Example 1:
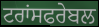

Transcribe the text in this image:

ਟਰਾਂਸਫਰੇਬਲ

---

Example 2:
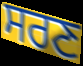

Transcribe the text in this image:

ਸਰਣ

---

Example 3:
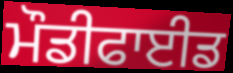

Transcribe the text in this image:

ਮੌਡੀਫਾਈਡ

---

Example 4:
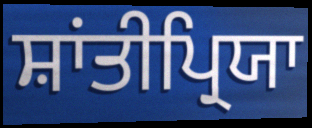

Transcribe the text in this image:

ਸ਼ਾਂਤੀਪ੍ਰਿਯਾ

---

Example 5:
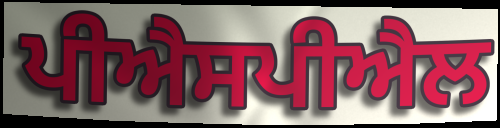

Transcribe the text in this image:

ਪੀਐਸਪੀਐਲ